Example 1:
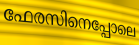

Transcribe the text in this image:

ഫേരസിനെപ്പോലെ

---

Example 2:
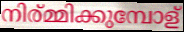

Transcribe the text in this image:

നിര്മ്മിക്കുമ്പോള്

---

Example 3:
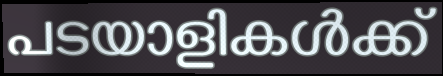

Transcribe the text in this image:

പടയാളികൾക്ക്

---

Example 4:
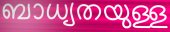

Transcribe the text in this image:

ബാധ്യതയുള്ള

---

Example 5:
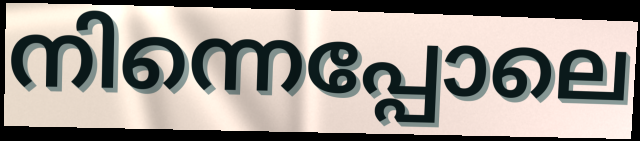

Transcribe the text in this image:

നിന്നെപ്പോലെ